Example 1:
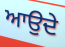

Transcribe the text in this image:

ਆਉਦੇ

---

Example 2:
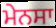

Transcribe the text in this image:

ਮੇਨਸਾ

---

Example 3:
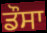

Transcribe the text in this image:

ਡੌਸਾ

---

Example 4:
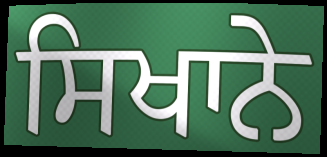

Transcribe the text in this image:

ਸਿਖਾਨੇ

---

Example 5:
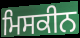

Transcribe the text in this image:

ਮਿਸਕੀਨ